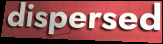
dispersed